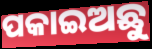
ପକାଇଅଛୁ